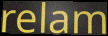
relam